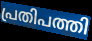
പ്രതിപത്തി